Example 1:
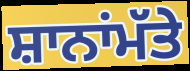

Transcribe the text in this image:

ਸ਼ਾਨਾਂਮੱਤੇ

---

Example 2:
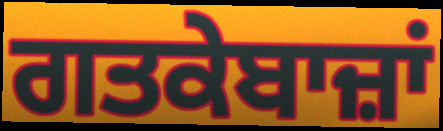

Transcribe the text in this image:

ਗਤਕੇਬਾਜ਼ਾਂ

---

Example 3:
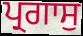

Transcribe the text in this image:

ਪ੍ਰਗਾਸੁ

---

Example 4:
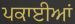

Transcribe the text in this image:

ਪਕਾਈਆਂ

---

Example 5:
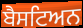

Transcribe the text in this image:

ਬੈਸਟਿਅਨ